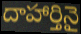
దాహార్తినై